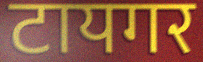
टायगर